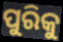
ପୁରିକୁ